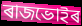
ৰাজভোইৰ